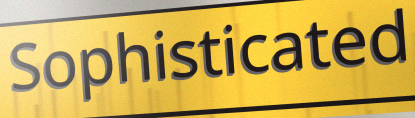
Sophisticated